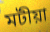
মটীয়া